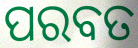
ପରବତ